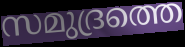
സമുദ്രത്തെ